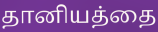
தானியத்தை